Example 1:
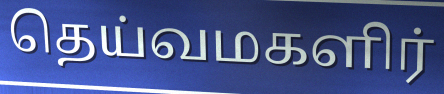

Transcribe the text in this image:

தெய்வமகளிர்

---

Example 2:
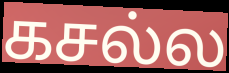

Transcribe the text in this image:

கசல்ல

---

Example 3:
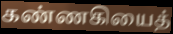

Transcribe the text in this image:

கண்ணகியைத்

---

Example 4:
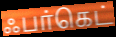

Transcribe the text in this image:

ஃபர்கெட்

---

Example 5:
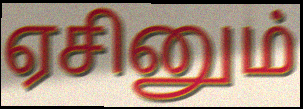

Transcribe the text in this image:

ஏசினும்